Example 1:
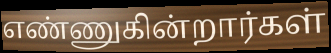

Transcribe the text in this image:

எண்ணுகின்றார்கள்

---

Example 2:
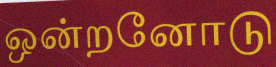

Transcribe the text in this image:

ஒன்றனோடு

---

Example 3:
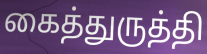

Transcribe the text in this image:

கைத்துருத்தி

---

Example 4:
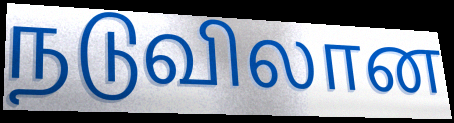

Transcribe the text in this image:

நடுவிலான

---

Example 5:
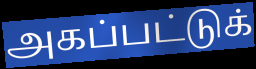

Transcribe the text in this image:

அகப்பட்டுக்